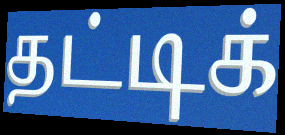
தட்டிக்